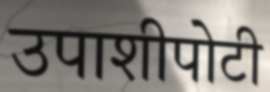
उपाशीपोटी